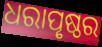
ଧରାପୃଷ୍ଠର